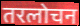
तरलोचन